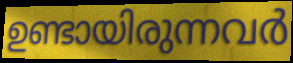
ഉണ്ടായിരുന്നവർ